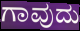
ಗಾವುದು